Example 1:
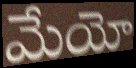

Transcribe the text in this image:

మేయో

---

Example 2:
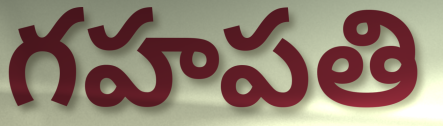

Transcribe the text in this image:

గహపతి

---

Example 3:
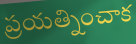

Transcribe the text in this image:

ప్రయత్నించాక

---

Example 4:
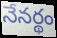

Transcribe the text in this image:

నేనర్థం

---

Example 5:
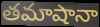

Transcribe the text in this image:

తమాషానా